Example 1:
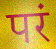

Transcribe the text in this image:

परं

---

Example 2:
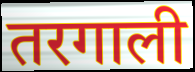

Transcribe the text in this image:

तरगाली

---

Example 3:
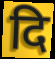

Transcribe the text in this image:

दि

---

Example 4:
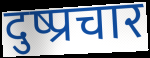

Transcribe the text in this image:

दुष्‍प्रचार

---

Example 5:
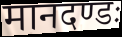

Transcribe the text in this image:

मानदण्डः